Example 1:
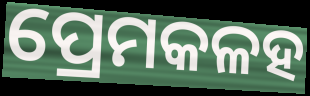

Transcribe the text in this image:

ପ୍ରେମକଳହ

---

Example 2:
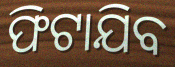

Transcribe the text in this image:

ଫିଟାଯିବ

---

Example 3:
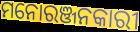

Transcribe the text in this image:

ମନୋରଞ୍ଜନକାରୀ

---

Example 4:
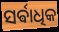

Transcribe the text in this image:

ସର୍ଵାଧିକ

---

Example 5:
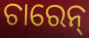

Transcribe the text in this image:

ଚାରେନ୍